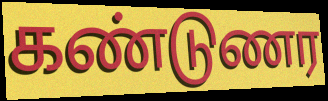
கண்டுணர